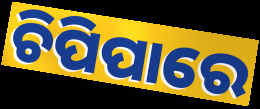
ଚିପିପାରେ